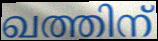
ഖത്തിന്